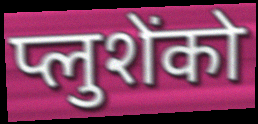
प्लुशेंको